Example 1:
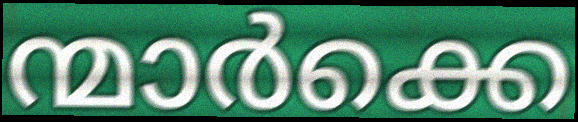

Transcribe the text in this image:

ന്മാർക്കെ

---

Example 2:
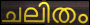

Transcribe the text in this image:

ചലിതം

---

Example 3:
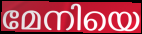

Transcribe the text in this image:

മേനിയെ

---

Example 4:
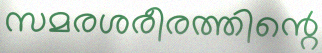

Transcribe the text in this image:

സമരശരീരത്തിന്റെ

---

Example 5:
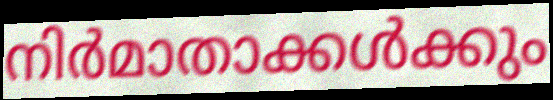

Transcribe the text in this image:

നിർമാതാക്കൾക്കും